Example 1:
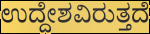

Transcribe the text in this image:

ಉದ್ದೇಶವಿರುತ್ತದೆ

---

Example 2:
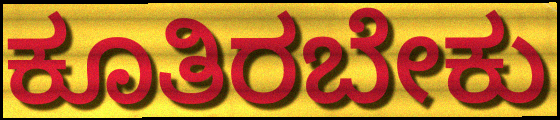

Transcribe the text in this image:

ಕೂತಿರಬೇಕು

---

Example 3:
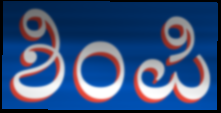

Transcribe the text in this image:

ಶಿಂಪಿ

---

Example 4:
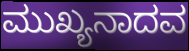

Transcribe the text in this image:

ಮುಖ್ಯನಾದವ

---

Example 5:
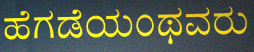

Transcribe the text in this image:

ಹೆಗಡೆಯಂಥವರು